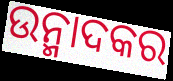
ଉନ୍ମାଦକର